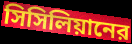
সিসিলিয়ানের